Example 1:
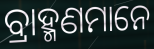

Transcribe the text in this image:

ବ୍ରାହ୍ମଣମାନେ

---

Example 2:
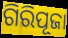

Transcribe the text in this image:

ଗିରିପୂଜା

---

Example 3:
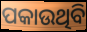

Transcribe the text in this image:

ପକାଉଥିବି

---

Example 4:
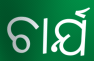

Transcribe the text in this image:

ଚାର୍ଯ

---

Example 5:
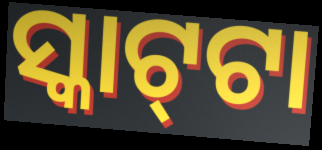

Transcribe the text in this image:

ସ୍କାଟ୍‌ଟା